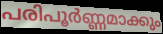
പരിപൂർണ്ണമാക്കും